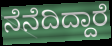
ನೆನೆದಿದ್ದಾರೆ